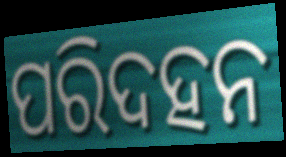
ପରିଦହନ